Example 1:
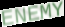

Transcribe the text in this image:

ENEMY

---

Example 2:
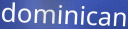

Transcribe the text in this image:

dominican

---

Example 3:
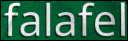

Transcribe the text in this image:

falafel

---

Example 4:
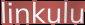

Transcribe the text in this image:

linkulu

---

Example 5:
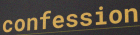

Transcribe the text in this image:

confession